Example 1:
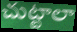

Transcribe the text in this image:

చుట్టాలా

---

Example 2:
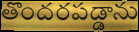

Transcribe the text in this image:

తొందరపడ్డాను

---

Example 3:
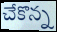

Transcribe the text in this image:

చేకొన్న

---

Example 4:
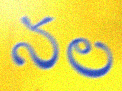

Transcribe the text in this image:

నల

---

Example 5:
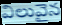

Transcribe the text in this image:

విలువైన